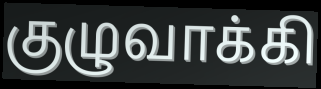
குழுவாக்கி